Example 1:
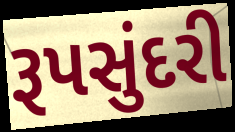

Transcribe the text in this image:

રૂપસુંદરી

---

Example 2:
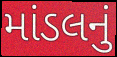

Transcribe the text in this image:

માંડલનું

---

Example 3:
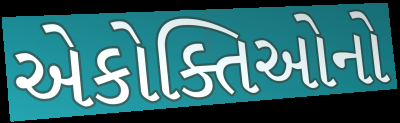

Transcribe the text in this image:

એકોક્તિઓનો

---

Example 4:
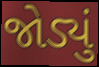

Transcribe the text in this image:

જોડ્યું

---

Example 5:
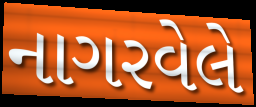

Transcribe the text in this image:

નાગરવેલે